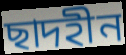
ছাদহীন